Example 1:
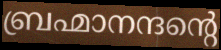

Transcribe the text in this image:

ബ്രഹ്മാനന്ദന്റെ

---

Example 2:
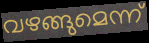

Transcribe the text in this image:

വഴങ്ങുമെന്ന്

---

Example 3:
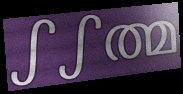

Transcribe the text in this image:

ഽഽത്മ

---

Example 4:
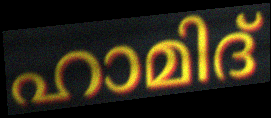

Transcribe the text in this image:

ഹാമിദ്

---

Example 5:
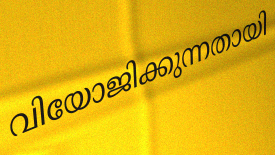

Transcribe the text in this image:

വിയോജിക്കുന്നതായി